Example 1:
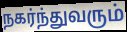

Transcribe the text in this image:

நகர்ந்துவரும்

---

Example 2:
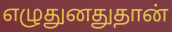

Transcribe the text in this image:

எழுதுனதுதான்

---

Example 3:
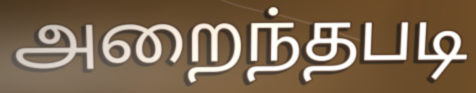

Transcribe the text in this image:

அறைந்தபடி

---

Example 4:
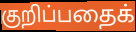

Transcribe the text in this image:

குறிப்பதைக்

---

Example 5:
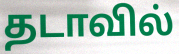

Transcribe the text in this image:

தடாவில்